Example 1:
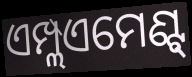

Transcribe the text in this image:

ଏମ୍ପ୍ଲଏମେଣ୍ଟ୍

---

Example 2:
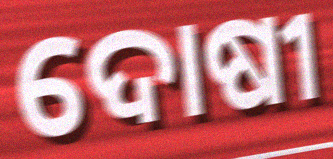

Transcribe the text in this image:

ଦୋଷୀ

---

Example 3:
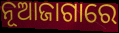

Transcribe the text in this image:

ନୂଆଜାଗାରେ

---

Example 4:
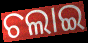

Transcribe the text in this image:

ଚଲାଇ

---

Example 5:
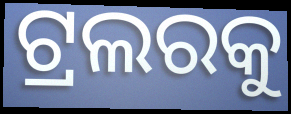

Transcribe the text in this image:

ଟ୍ରଲରକୁ